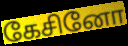
கேசினோ